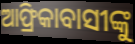
ଆଫ୍ରିକାବାସୀଙ୍କୁ